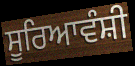
ਸੂਰਿਆਵੰਸ਼ੀ